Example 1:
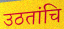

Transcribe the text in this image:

उठतांचि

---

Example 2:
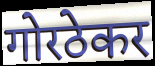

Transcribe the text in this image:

गोरठेकर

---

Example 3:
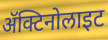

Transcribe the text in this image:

ॲक्टिनोलाइट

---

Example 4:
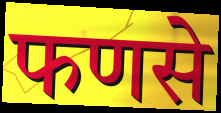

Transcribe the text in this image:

फणसे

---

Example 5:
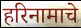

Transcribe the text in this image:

हरिनामाचे